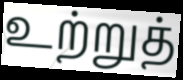
உற்றுத்